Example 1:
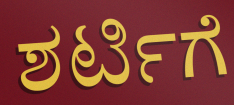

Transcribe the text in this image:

ಶರ್ಟಿಗೆ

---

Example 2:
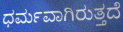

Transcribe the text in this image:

ಧರ್ಮವಾಗಿರುತ್ತದೆ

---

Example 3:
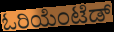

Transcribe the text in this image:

ಓರಿಯೆಂಟೆಡ್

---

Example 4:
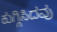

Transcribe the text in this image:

ಕುಗ್ಗಿಸಿದವು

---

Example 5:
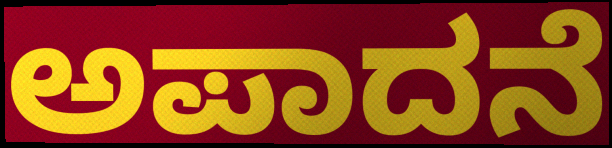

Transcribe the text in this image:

ಅಪಾದನೆ